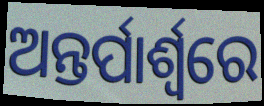
ଅନ୍ତର୍ପାର୍ଶ୍ୱରେ